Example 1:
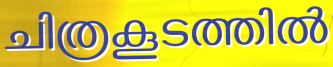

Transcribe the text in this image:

ചിത്രകൂടത്തിൽ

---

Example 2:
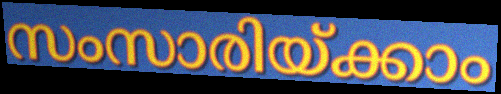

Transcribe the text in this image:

സംസാരിയ്ക്കാം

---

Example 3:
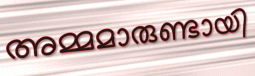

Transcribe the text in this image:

അമ്മമാരുണ്ടായി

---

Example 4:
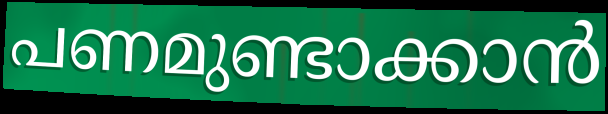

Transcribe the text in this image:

പണമുണ്ടാക്കാൻ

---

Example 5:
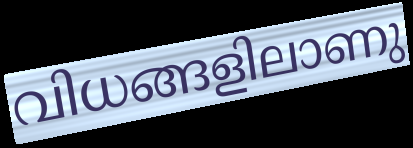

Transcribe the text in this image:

വിധങ്ങളിലാണു